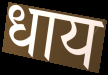
धाय